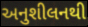
અનુશીલનથી